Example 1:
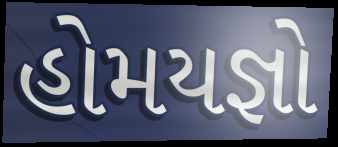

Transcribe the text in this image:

હોમયજ્ઞો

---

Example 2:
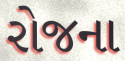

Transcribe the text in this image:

રોજના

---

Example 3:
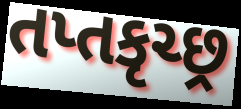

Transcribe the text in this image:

તપ્તકૃચ્છ્ર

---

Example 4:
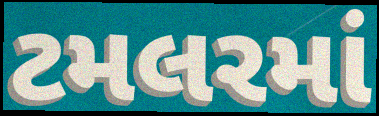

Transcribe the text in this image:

ટમલરમાં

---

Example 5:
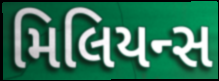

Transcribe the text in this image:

મિલિયન્સ